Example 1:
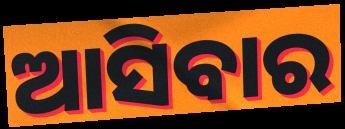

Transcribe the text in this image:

ଆସିବାର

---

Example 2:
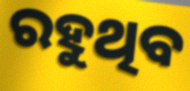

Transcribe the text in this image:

ରହୁଥିବ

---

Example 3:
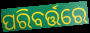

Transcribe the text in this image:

ପରିବର୍ତ୍ତରେ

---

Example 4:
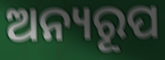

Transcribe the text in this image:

ଅନ୍ୟରୂପ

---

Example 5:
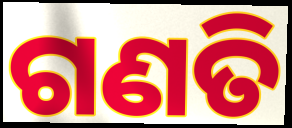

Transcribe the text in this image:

ଗଣତି